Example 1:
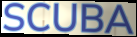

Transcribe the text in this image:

SCUBA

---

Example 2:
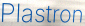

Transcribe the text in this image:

Plastron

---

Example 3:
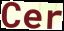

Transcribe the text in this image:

Cer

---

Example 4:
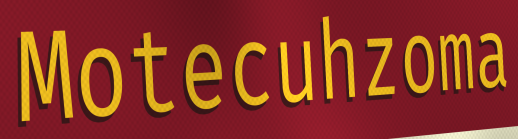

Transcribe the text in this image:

Motecuhzoma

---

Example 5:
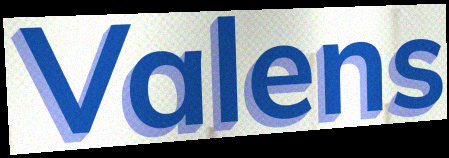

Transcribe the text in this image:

Valens